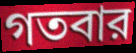
গতবার